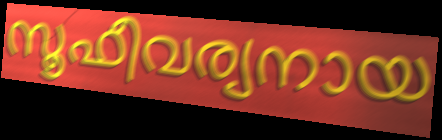
സൂഫീവര്യനായ